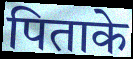
पिताके